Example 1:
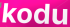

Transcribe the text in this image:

kodu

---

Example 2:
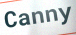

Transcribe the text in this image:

Canny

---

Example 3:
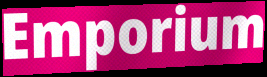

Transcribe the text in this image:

Emporium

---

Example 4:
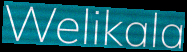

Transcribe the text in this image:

Welikala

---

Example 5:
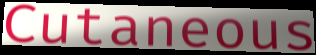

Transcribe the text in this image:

Cutaneous